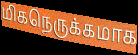
மிகநெருக்கமாக